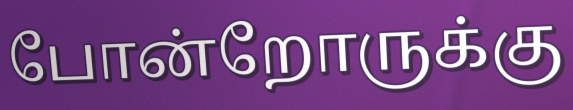
போன்றோருக்கு